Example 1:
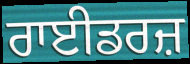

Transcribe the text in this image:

ਰਾਈਡਰਜ਼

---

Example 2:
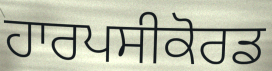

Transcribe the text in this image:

ਹਾਰਪਸੀਕੋਰਡ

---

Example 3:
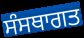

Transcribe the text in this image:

ਸੰਸਥਾਗਤ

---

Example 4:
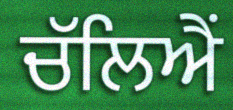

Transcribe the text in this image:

ਚੱਲਿਐਂ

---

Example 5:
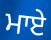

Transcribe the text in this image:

ਮਾਏ